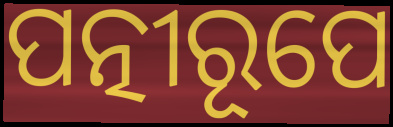
ପତ୍ନୀରୂପେ